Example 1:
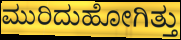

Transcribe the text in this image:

ಮುರಿದುಹೋಗಿತ್ತು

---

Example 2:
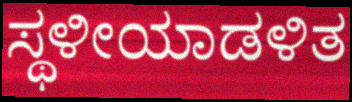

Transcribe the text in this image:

ಸ್ಥಳೀಯಾಡಳಿತ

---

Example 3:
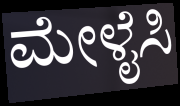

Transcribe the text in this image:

ಮೇಳೈಸಿ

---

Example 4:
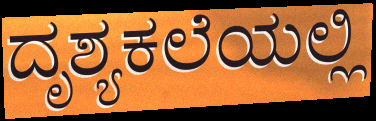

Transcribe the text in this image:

ದೃಶ್ಯಕಲೆಯಲ್ಲಿ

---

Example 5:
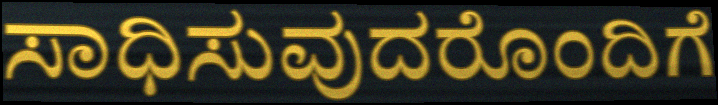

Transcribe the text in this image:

ಸಾಧಿಸುವುದರೊಂದಿಗೆ